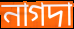
নাগদা